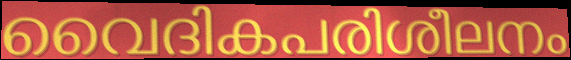
വൈദികപരിശീലനം